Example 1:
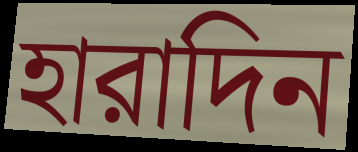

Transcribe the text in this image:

হারাদিন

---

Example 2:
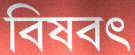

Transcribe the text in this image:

বিষবৎ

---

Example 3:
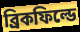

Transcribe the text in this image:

ব্রিকফিল্ডে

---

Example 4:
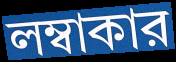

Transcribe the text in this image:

লম্বাকার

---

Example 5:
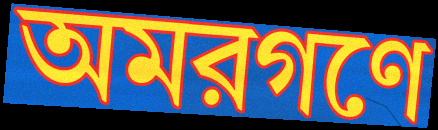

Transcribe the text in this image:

অমরগণে